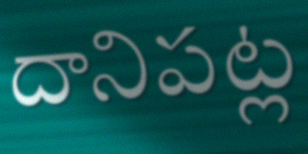
దానిపట్ల